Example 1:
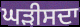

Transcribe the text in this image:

ਘੜੀਸਦਾ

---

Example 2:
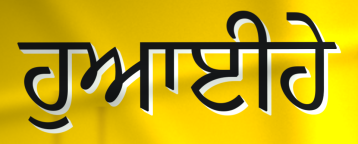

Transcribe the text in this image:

ਹੁਆਈਹੇ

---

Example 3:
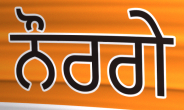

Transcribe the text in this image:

ਨੌਰਗੇ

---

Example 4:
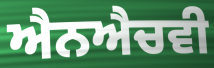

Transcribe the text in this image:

ਐਨਐਚਵੀ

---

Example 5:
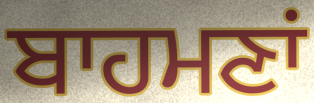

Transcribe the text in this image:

ਬਾਹਮਣਾਂ